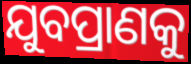
ଯୁବପ୍ରାଣକୁ